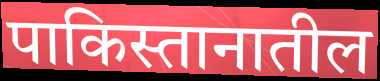
पाकिस्‍तानातील